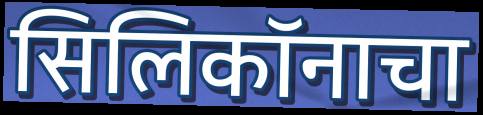
सिलिकॉनाचा